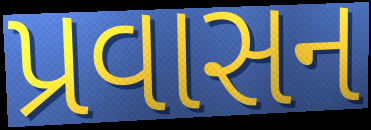
પ્રવાસન